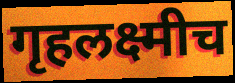
गृहलक्ष्मीच